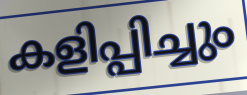
കളിപ്പിച്ചും